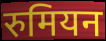
रुमियन